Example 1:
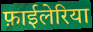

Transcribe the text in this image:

फ़ाईलेरिया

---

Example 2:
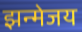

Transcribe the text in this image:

झन्मेजय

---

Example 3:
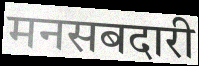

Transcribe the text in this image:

मनसबदारी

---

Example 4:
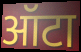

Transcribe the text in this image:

ऑटा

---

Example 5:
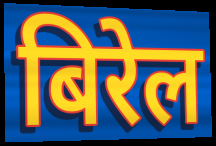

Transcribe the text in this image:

बिरेल